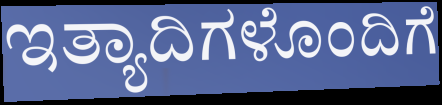
ಇತ್ಯಾದಿಗಳೊಂದಿಗೆ